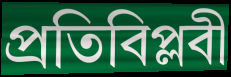
প্রতিবিপ্লবী